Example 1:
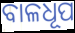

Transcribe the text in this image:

ବାଳଧୂପ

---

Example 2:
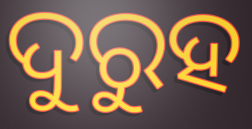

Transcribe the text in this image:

ଦୁରୁହ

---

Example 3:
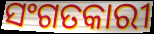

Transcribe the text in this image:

ସଂଗତକାରୀ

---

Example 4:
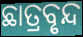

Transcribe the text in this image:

ଛାତ୍ରବୃନ୍ଦ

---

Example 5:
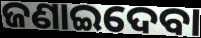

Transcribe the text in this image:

ଜଣାଇଦେବା